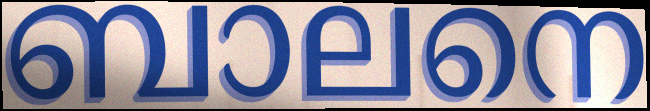
ബാലനെ